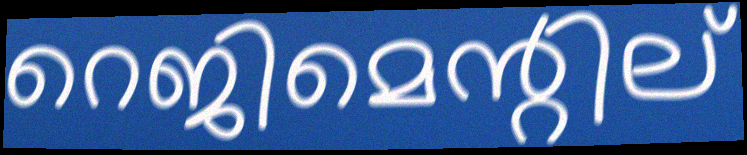
റെജിമെന്റില്